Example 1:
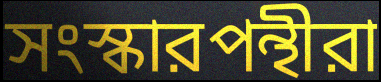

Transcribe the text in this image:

সংস্কারপন্থীরা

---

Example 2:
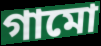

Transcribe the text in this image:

গামো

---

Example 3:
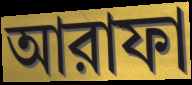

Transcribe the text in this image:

আরাফা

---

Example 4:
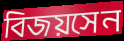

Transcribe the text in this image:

বিজয়সেন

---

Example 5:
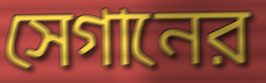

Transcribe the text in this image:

সেগানের